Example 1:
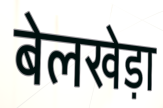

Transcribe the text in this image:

बेलखेड़ा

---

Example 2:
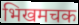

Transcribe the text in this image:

भिखमचक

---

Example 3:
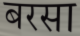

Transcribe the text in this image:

बरसा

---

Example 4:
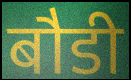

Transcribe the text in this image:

बौडी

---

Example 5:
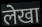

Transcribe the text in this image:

लेखा